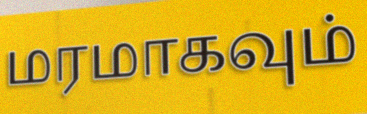
மரமாகவும்